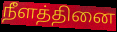
நீளத்தினை